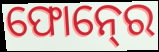
ଫୋନ୍‍ରେ